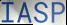
IASP